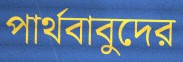
পার্থবাবুদের